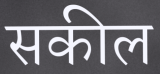
सकील